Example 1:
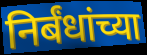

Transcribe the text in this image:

निर्बंधांच्या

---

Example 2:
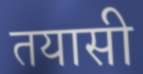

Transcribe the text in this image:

तयासी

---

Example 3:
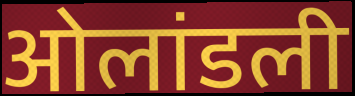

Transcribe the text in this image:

ओलांडली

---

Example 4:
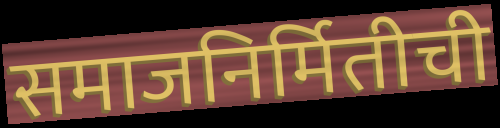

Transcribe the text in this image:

समाजनिर्मितीची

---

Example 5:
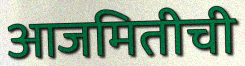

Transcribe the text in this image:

आजमितीची